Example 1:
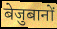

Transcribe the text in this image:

बेजुबानों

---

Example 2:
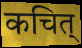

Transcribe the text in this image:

कचित्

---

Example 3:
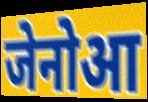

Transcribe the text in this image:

जेनोआ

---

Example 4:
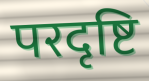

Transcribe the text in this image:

परदृष्टि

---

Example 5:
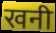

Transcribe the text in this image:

खनी